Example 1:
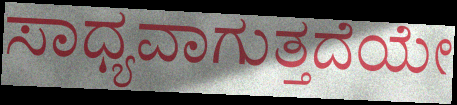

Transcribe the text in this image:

ಸಾಧ್ಯವಾಗುತ್ತದೆಯೇ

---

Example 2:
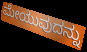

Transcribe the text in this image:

ಮೇಯುವುದನ್ನು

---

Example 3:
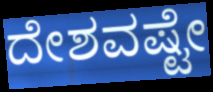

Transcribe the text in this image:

ದೇಶವಷ್ಟೇ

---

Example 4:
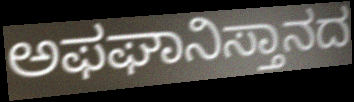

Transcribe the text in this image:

ಅಫಘಾನಿಸ್ತಾನದ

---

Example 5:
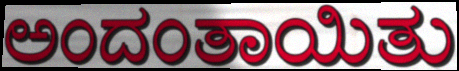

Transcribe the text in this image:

ಅಂದಂತಾಯಿತು